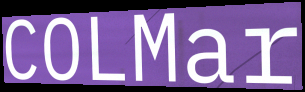
COLMar